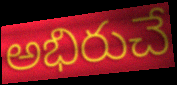
అభిరుచే